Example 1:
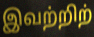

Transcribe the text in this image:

இவற்றிற்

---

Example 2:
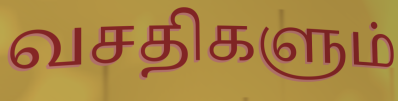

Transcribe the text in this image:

வசதிகளும்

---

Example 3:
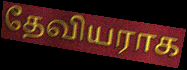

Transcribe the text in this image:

தேவியராக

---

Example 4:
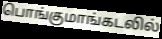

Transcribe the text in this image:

பொங்குமாங்கடலில்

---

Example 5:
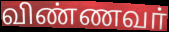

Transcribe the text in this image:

விண்ணவர்